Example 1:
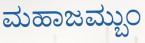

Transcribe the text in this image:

ಮಹಾಜಮ್ಬುಂ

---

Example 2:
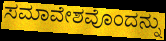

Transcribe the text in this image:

ಸಮಾವೇಶವೊಂದನ್ನು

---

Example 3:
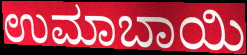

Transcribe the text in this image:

ಉಮಾಬಾಯಿ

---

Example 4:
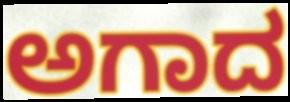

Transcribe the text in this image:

ಅಗಾದ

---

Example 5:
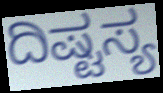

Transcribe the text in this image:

ದಿಷ್ಟಸ್ಯ